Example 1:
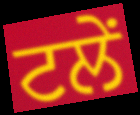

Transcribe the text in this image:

ਟਲੇਂ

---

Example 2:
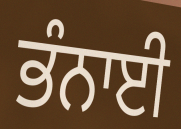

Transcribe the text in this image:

ਭੰਨਾਈ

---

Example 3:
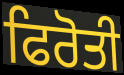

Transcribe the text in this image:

ਫਿਰੋਤੀ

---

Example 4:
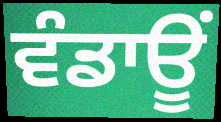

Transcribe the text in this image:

ਵੰਡਾਊਂ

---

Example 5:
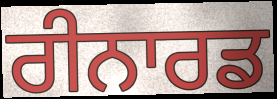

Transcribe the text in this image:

ਰੀਨਾਰਡ